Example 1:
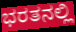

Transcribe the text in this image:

ಭರತನಲ್ಲಿ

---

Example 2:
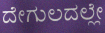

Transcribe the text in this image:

ದೇಗುಲದಲ್ಲೇ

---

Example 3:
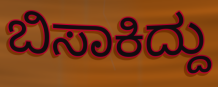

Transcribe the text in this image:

ಬಿಸಾಕಿದ್ದು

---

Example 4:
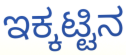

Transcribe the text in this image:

ಇಕ್ಕಟ್ಟಿನ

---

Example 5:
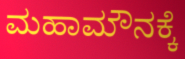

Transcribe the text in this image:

ಮಹಾಮೌನಕ್ಕೆ